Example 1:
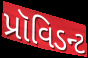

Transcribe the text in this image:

પ્રૉવિડન્ટ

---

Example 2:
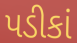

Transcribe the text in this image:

પડીકાં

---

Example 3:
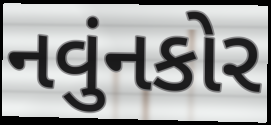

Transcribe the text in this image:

નવુંનકોર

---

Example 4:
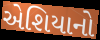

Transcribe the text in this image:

એશિયાનો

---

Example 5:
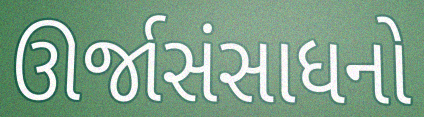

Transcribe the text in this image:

ઊર્જાસંસાધનો